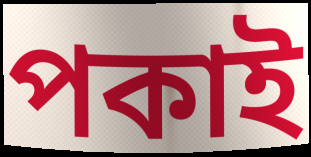
পকাই